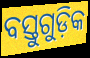
ବସ୍ତୁଗୁଡ଼ିକ